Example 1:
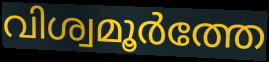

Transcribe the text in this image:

വിശ്വമൂർത്തേ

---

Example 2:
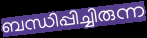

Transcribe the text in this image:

ബന്ധിപ്പിച്ചിരുന്ന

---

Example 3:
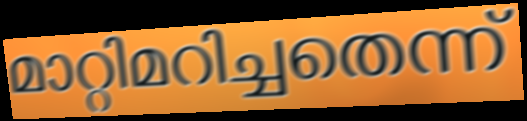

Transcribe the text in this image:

മാറ്റിമറിച്ചതെന്ന്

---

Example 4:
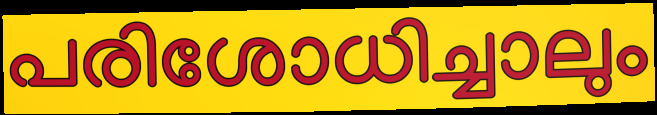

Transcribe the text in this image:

പരിശോധിച്ചാലും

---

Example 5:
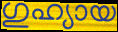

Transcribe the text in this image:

ഗുഹ്യായ